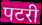
पटरी